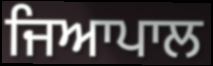
ਜਿਆਪਾਲ